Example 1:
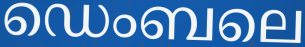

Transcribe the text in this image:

ഡെംബലെ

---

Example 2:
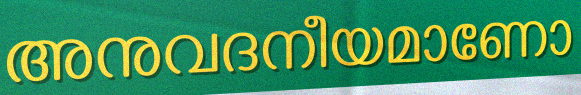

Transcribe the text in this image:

അനുവദനീയമാണോ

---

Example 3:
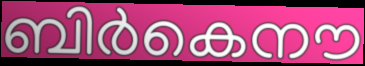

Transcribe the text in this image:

ബിർകെനൗ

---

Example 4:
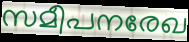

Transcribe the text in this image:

സമീപനരേഖ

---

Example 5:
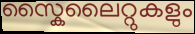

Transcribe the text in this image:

സ്കൈലൈറ്റുകളും